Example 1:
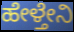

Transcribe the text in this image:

ಹೇಳ್ತೇನಿ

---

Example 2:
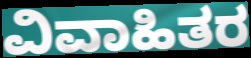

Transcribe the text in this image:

ವಿವಾಹಿತರ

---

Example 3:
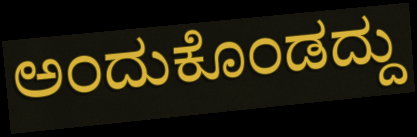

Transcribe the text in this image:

ಅಂದುಕೊಂಡದ್ದು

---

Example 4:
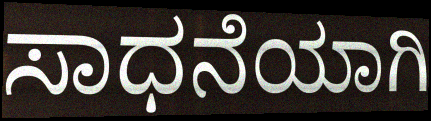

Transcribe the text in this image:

ಸಾಧನೆಯಾಗಿ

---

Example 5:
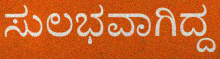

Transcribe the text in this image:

ಸುಲಭವಾಗಿದ್ದ